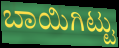
ಬಾಯಿಗಿಟ್ಟು